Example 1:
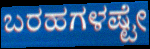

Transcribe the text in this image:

ಬರಹಗಳಷ್ಟೇ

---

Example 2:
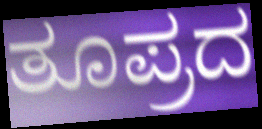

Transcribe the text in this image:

ತೂಪ್ರದ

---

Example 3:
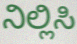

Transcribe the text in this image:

ನಿಲ್ಲಿಸಿ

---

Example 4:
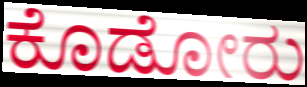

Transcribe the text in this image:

ಕೊಡೋರು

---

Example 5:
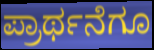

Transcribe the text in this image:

ಪ್ರಾರ್ಥನೆಗೂ